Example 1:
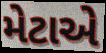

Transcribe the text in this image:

મેટાએ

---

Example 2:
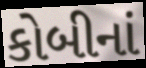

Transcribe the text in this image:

કોબીનાં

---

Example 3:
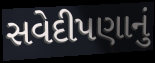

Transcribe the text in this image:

સવેદીપણાનું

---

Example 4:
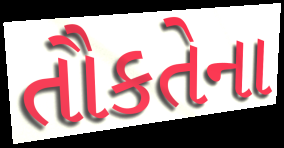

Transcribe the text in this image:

તૌકતેના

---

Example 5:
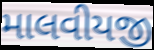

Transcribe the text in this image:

માલવીયજી